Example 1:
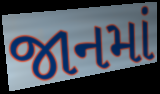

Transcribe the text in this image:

જાનમાં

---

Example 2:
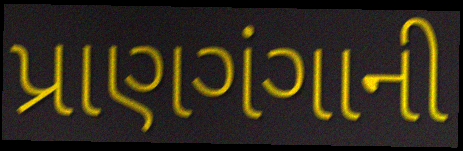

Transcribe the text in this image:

પ્રાણગંગાની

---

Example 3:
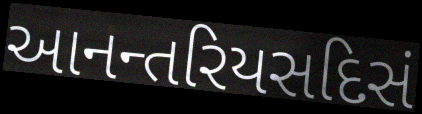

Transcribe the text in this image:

આનન્તરિયસદિસં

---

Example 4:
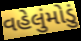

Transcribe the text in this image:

વહેલુંમોડું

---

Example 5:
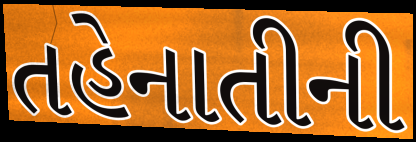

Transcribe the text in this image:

તહેનાતીની